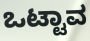
ಒಟ್ಟಾವ